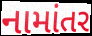
નામાંતર